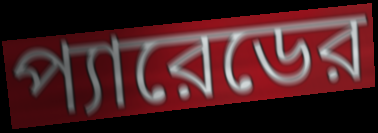
প্যারেডের